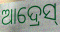
ଆଦ୍ରେସ୍